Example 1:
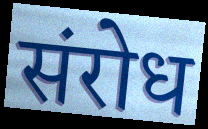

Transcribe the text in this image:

संरोध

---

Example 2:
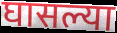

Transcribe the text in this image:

घासल्या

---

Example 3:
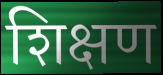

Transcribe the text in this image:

शिक्षण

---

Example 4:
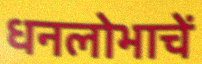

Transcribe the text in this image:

धनलोभाचें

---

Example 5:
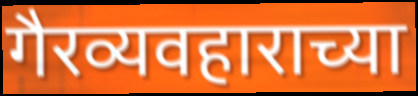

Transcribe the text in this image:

गैरव्यवहाराच्या